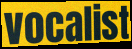
vocalist